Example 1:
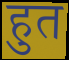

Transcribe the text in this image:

हुत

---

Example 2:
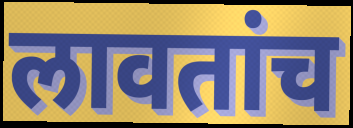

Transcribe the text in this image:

लावतांच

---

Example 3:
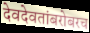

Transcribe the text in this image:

देवदेवतांबरोबरच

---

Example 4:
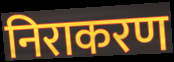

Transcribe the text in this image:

निराकरण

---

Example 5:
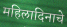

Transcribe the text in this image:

महिलादिनाचे